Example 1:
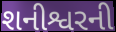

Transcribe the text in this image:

શનીશ્વરની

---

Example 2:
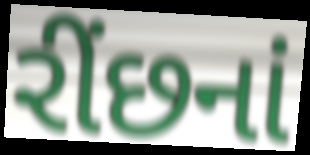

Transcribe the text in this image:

રીંછનાં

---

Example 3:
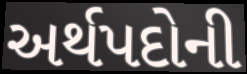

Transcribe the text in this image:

અર્થપદોની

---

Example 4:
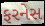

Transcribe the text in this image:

ફરનેસ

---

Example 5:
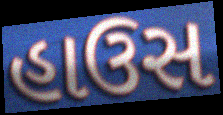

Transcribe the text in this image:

હાઉસ